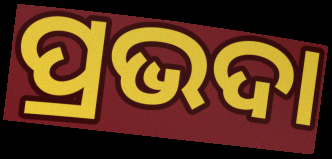
ପ୍ରଭଦା